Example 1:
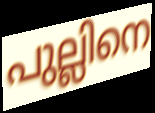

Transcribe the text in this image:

പുല്ലിനെ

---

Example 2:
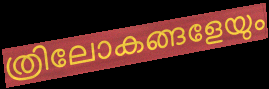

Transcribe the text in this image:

ത്രിലോകങ്ങളേയും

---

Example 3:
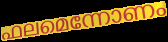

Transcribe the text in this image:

ഫലമെന്നോണം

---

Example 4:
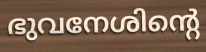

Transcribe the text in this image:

ഭുവനേശിന്റെ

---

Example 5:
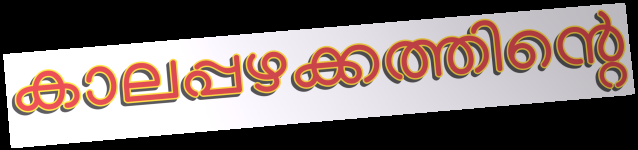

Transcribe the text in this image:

കാലപ്പഴക്കത്തിന്റെ